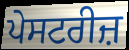
ਪੇਸਟਰੀਜ਼